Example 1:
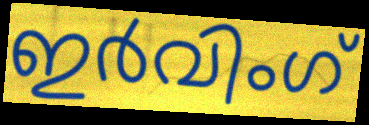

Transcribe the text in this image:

ഇർവിംഗ്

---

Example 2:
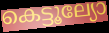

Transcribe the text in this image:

കെട്ടൂല്യോ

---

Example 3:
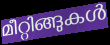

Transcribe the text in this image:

മീറ്റിങ്ങുകൾ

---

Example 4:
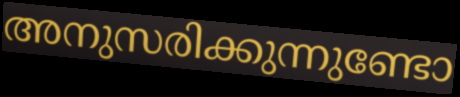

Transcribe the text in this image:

അനുസരിക്കുന്നുണ്ടോ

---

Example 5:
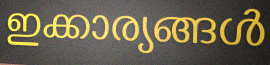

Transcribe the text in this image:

ഇക്കാര്യങ്ങൾ